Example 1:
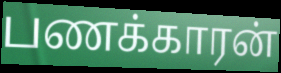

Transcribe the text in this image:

பணக்காரன்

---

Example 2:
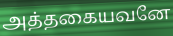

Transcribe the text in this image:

அத்தகையவனே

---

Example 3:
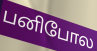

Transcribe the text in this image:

பனிபோல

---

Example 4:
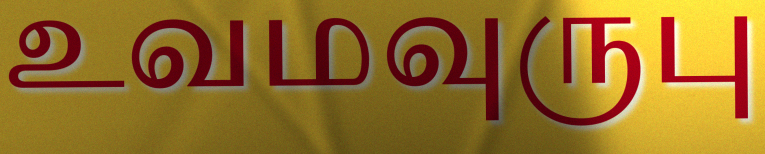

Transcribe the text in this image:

உவமவுருபு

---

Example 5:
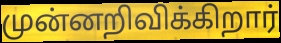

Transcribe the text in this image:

முன்னறிவிக்கிறார்